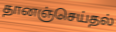
தானஞ்செய்தல்